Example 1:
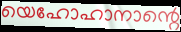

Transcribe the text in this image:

യെഹോഹാനാന്റെ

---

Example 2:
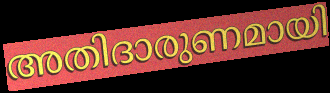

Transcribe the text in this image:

അതിദാരുണമായി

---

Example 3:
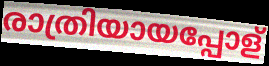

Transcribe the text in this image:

രാത്രിയായപ്പോള്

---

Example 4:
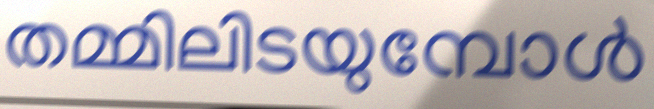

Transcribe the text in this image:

തമ്മിലിടയുമ്പോൾ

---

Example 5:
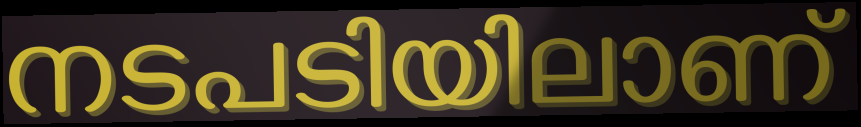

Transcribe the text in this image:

നടപടിയിലാണ്